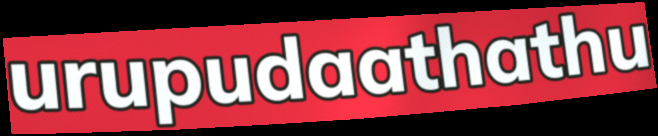
urupudaathathu